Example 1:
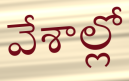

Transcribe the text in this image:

వేశాల్లో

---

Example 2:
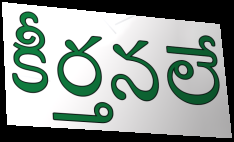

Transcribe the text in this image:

కీర్తనలే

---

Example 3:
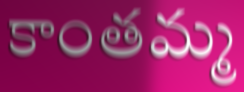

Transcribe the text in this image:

కాంతమ్మ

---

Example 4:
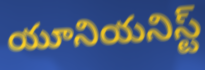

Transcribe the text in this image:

యూనియనిస్ట్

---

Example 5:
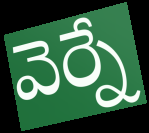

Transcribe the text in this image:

వెర్నే